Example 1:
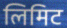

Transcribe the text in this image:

लिमिट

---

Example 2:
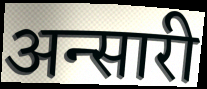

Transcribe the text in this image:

अन्सारी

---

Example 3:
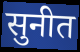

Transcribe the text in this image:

सुनीत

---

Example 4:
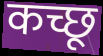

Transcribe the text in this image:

कच्छू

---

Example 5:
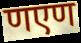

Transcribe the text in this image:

णएण